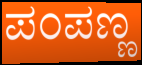
ಪಂಪಣ್ಣ